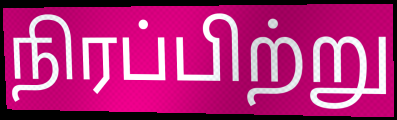
நிரப்பிற்று